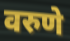
वरुणे